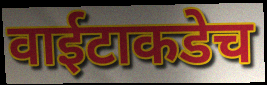
वाईटाकडेच